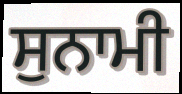
ਸੁਨਾਮੀ